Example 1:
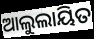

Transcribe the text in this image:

ଆଲୁଲାୟିତ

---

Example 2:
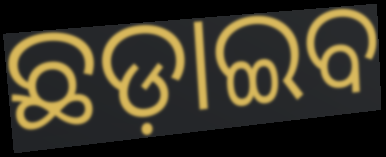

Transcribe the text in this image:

ଛଡ଼ାଇବ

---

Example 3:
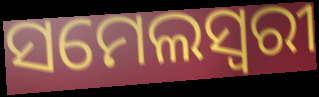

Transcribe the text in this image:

ସମେଲସ୍ୱରୀ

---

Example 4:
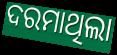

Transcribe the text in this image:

ଦରମାଥିଲା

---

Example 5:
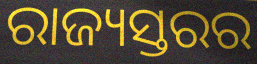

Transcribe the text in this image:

ରାଜ୍ୟସ୍ତରର